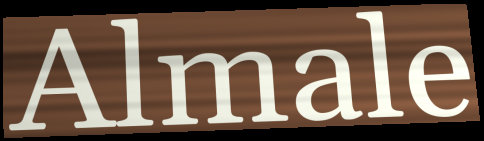
Almale